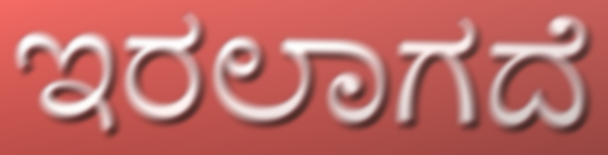
ಇರಲಾಗದೆ